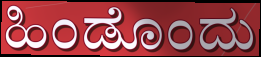
ಹಿಂಡೊಂದು